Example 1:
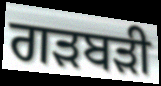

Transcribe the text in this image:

ਗੜਬੜੀ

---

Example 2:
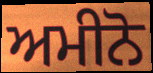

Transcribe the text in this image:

ਅਮੀਨੋ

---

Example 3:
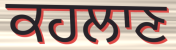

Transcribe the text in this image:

ਕਹਲਾਣ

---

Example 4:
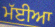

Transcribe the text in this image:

ਮੱਈਆ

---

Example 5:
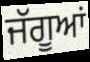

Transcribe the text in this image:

ਜੱਗੂਆਂ